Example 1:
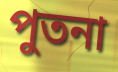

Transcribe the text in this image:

পুতনা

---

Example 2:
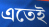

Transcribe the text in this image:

এতেই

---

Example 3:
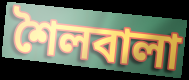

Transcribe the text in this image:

শৈলবালা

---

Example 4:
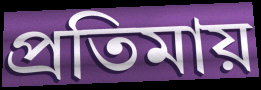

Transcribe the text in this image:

প্রতিমায়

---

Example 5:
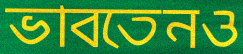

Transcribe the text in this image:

ভাবতেনও